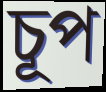
চূপ